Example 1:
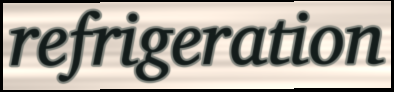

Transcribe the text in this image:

refrigeration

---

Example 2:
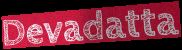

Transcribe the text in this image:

Devadatta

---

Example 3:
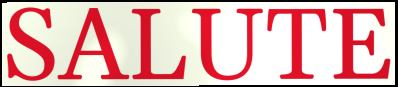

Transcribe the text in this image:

SALUTE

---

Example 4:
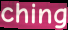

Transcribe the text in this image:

ching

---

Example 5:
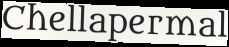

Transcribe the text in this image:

Chellapermal